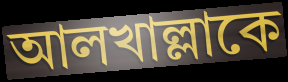
আলখাল্লাকে